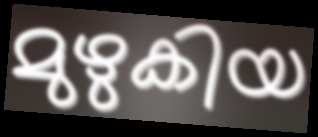
മുഴുകിയ